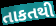
તાકતથી